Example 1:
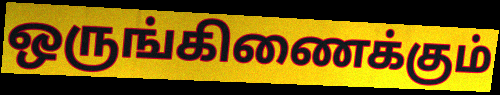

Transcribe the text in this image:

ஒருங்கிணைக்கும்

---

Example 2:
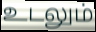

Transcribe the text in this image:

உடலும்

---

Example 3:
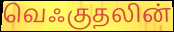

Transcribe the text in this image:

வெஃகுதலின்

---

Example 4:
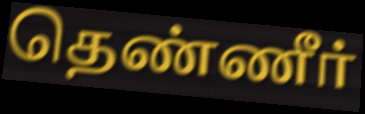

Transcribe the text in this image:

தெண்ணீர்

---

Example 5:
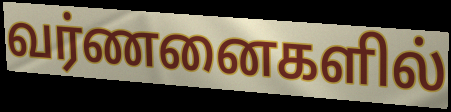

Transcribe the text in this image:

வர்ணனைகளில்